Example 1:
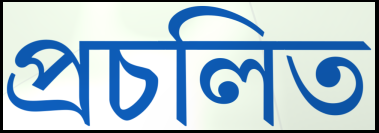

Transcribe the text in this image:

প্রচলিত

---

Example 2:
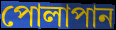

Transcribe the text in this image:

পোলাপান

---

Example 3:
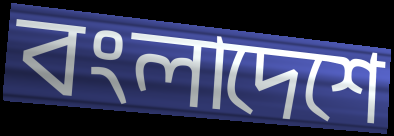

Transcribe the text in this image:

বংলাদেশে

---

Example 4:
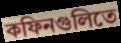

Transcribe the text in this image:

কফিনগুলিতে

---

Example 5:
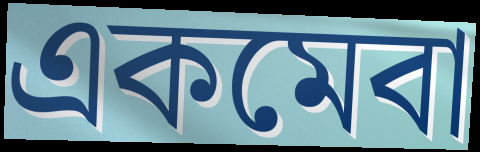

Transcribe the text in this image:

একমেবা